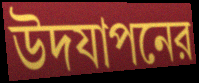
উদযাপনের